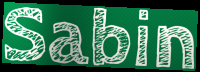
Sabin